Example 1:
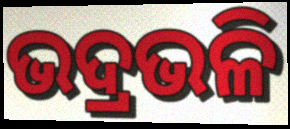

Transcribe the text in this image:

ଭଦ୍ରଭଳି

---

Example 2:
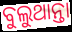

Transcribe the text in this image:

ବୁଲୁଥାନ୍ତା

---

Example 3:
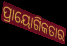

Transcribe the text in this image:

ପ୍ରାୟୋଗିକତାର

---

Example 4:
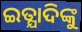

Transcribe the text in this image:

ଇତ୍ଯାଦିଙ୍କୁ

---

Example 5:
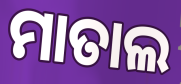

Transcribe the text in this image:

ମାତାଲ